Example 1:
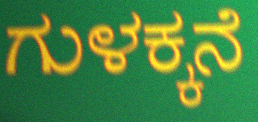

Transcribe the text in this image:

ಗುಳಕ್ಕನೆ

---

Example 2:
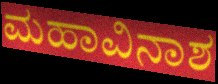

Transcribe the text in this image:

ಮಹಾವಿನಾಶ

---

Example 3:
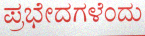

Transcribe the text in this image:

ಪ್ರಭೇದಗಳೆಂದು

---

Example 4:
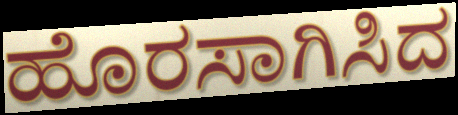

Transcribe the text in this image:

ಹೊರಸಾಗಿಸಿದ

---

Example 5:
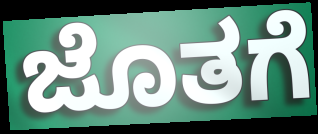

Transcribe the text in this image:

ಜೊತಗೆ